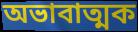
অভাবাত্মক